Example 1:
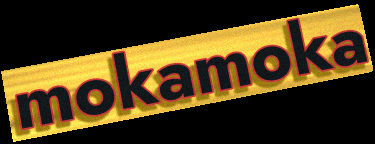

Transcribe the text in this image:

mokamoka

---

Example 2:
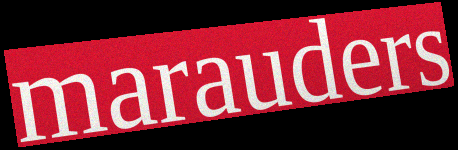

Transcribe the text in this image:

marauders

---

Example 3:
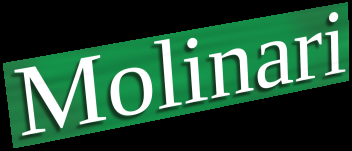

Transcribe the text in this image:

Molinari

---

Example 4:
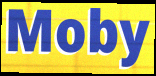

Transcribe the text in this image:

Moby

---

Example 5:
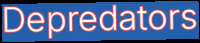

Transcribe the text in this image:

Depredators